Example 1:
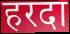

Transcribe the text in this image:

हरदा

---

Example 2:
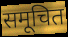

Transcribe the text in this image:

समूचित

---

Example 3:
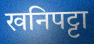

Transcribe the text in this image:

खनिपट्टा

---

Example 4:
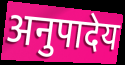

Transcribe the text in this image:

अनुपादेय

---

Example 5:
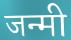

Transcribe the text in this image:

जन्मी